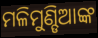
ମଳିମୁଣ୍ଡିଆଙ୍କ